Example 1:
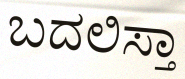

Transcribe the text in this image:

ಬದಲಿಸ್ತಾ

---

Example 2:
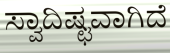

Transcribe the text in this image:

ಸ್ವಾದಿಷ್ಟವಾಗಿದೆ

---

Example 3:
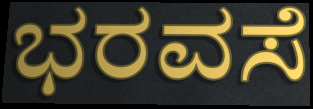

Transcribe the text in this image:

ಭರವಸೆ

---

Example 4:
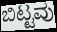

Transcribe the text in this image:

ಬಿಟ್ಟವು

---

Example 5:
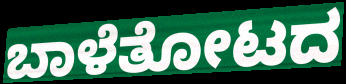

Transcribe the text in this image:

ಬಾಳೆತೋಟದ